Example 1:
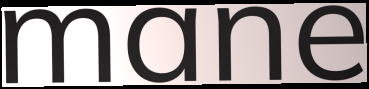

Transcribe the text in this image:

mane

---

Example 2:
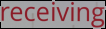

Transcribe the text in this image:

receiving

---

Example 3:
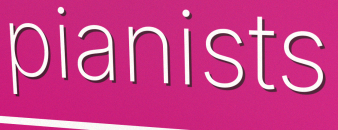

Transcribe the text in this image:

pianists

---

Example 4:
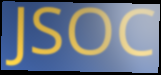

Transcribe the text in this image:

JSOC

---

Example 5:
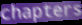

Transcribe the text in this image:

chapters